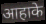
आहाके